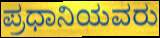
ಪ್ರಧಾನಿಯವರು